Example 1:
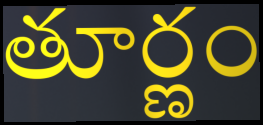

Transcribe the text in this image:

తూర్ణం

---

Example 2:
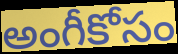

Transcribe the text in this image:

అంగీకోసం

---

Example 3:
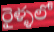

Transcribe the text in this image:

రైళ్ళలో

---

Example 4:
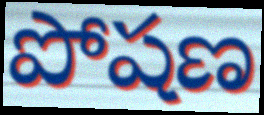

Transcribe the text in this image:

పోషణ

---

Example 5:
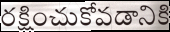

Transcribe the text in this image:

రక్షించుకోవడానికి